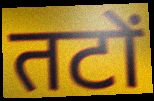
तटों